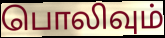
பொலிவும்